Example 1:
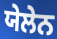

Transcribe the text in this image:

ਯੇਲੇਨ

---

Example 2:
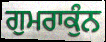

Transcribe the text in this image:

ਗੁਮਰਾਕੁੰਨ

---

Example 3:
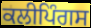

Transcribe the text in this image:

ਕਲੀਪਿੰਗਸ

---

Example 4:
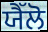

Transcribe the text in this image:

ਯੈੱਲੋ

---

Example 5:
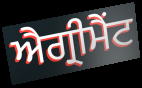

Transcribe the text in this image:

ਐਗ੍ਰੀਮੈਂਟ